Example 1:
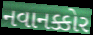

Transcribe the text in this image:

નવાનક્કોર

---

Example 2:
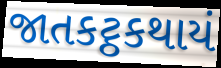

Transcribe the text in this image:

જાતકટ્ઠકથાયં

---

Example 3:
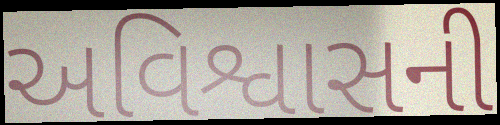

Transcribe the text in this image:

અવિશ્વાસની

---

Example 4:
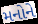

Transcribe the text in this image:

મનોને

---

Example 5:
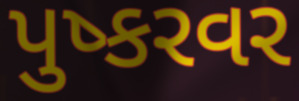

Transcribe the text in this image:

પુષ્કરવર